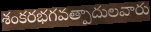
శంకరభగవత్పాదులవారు